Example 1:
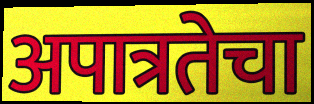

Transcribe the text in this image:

अपात्रतेचा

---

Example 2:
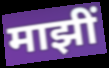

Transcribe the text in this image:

माझीं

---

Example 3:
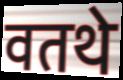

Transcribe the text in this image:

वतथे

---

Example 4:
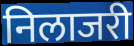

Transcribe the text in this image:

निलाजरी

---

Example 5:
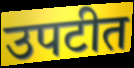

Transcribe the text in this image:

उपटीत